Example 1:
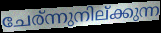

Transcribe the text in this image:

ചേര്ന്നുനില്ക്കുന്ന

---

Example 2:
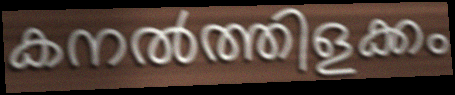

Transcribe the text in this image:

കനൽത്തിളക്കം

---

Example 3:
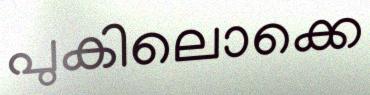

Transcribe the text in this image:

പുകിലൊക്കെ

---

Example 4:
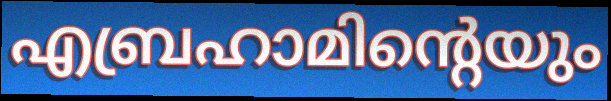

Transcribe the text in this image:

എബ്രഹാമിന്റെയും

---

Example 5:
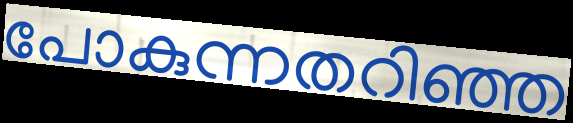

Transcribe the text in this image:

പോകുന്നതറിഞ്ഞ